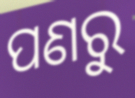
ପଣରୁ